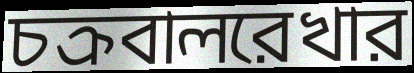
চক্রবালরেখার